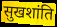
सुखशांति